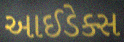
આઈડેક્સ